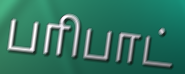
பரிபாட்